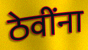
ठेवींना